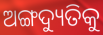
ଅଙ୍ଗଦ୍ୟୁତିକୁ